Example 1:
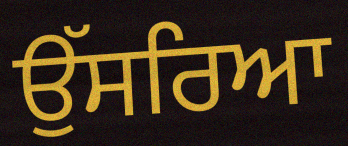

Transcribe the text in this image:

ਉੱਸਰਿਆ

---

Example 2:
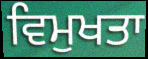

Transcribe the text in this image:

ਵਿਮੁਖਤਾ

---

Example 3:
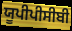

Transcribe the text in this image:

ਯੂਪੀਪੀਸੀਬੀ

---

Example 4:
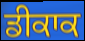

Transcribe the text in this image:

ਡੀਕਾਕ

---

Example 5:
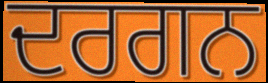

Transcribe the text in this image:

ਦਰਗਨ